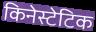
किनेस्टेटिक